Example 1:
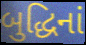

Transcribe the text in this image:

બુદ્ધિનાં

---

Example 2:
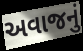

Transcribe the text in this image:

અવાજનું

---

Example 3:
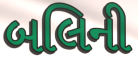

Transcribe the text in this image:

બલિની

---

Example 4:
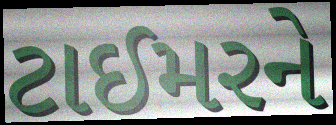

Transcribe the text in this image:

ટાઈમરને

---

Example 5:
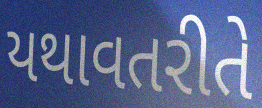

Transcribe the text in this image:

યથાવતરીતે